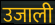
उजाली